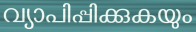
വ്യാപിപ്പിക്കുകയും